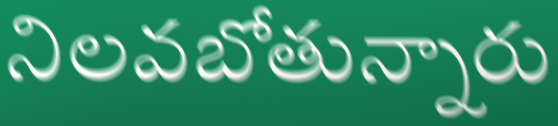
నిలవబోతున్నారు